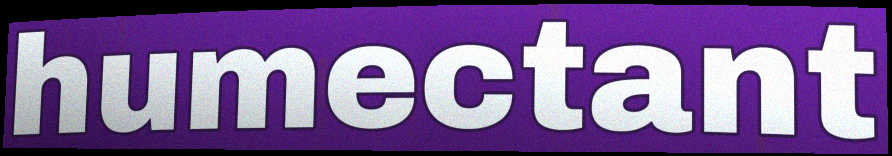
humectant